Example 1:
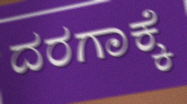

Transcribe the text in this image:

ದರಗಾಕ್ಕೆ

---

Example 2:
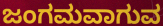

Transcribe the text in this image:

ಜಂಗಮವಾಗುವ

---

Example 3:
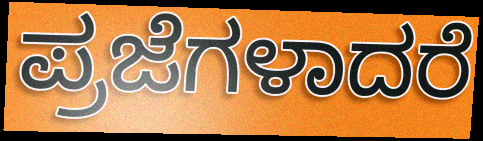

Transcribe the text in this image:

ಪ್ರಜೆಗಳಾದರೆ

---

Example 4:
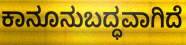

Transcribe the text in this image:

ಕಾನೂನುಬದ್ಧವಾಗಿದೆ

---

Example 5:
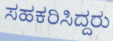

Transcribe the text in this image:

ಸಹಕರಿಸಿದ್ದರು